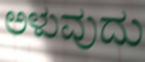
ಅಳುವುದು